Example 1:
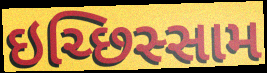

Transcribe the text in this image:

ઇચ્છિસ્સામ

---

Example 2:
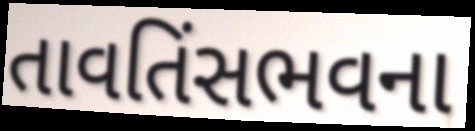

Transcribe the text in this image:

તાવતિંસભવના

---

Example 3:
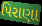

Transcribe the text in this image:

પિરાણા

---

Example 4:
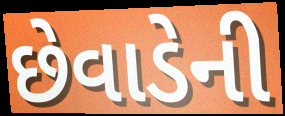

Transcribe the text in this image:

છેવાડેની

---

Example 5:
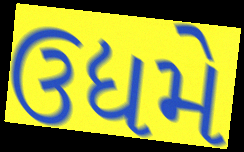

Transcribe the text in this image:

ઉદ્યમે